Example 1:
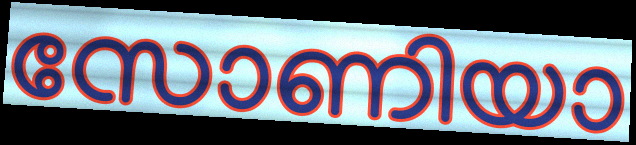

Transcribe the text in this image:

സോണിയാ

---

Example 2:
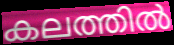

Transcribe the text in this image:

കലത്തിൽ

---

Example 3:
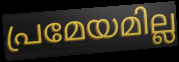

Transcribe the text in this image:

പ്രമേയമില്ല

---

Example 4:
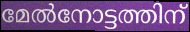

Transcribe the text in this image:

മേൽനോട്ടത്തിന്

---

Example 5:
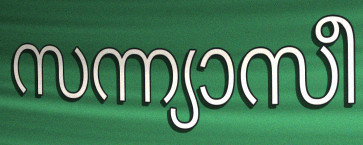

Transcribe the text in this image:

സന്ന്യാസീ